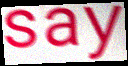
say